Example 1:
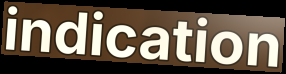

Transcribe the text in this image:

indication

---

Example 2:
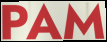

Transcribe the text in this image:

PAM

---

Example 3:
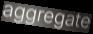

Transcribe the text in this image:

aggregate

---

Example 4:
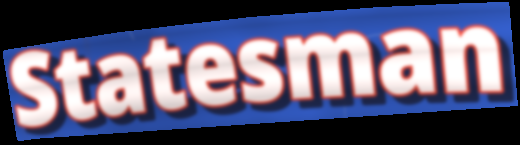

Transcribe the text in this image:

Statesman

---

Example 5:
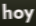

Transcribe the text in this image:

hoy